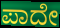
ಪಾದೇ